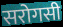
सरोगसी